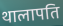
थालापति